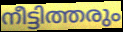
നീട്ടിത്തരും